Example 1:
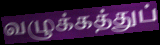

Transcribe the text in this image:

வழுக்கத்துப்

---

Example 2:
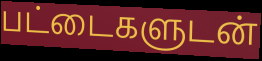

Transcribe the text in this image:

பட்டைகளுடன்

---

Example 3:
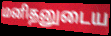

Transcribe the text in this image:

மனிதனுடைய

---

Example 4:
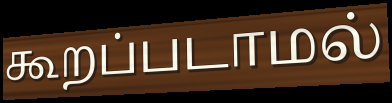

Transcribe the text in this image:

கூறப்படாமல்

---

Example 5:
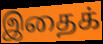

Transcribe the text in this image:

இதைக்